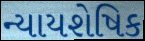
ન્યાયશેષિક